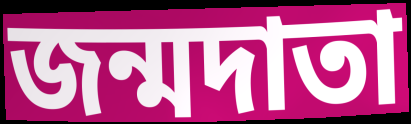
জন্মদাতা